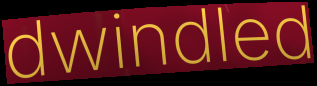
dwindled